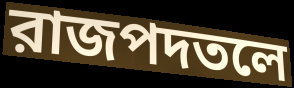
রাজপদতলে